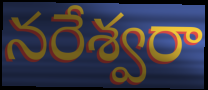
నరేశ్వరా